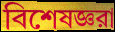
বিশেষজ্ঞরা